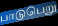
பாடுபெறு